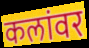
कलांवर